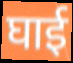
घाई